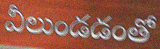
వీలుండడంతో